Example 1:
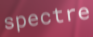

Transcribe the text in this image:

spectre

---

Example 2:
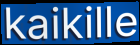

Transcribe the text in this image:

kaikille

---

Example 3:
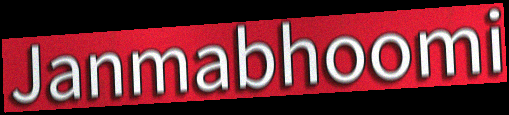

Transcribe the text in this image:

Janmabhoomi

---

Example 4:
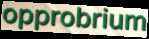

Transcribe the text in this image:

opprobrium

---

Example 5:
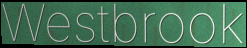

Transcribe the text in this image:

Westbrook